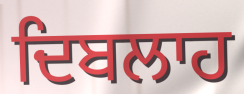
ਦਿਬਲਾਹ